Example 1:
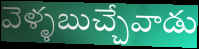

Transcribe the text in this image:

వెళ్ళబుచ్చేవాడు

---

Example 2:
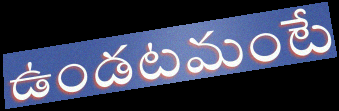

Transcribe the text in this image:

ఉండటమంటే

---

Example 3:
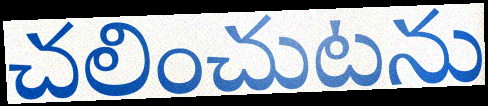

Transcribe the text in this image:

చలించుటను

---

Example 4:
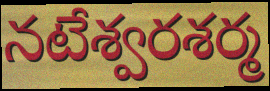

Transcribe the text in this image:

నటేశ్వరశర్మ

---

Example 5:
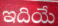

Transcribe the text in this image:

ఇదియే